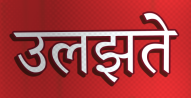
उलझते